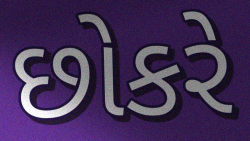
છોકરે